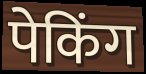
पेकिंग